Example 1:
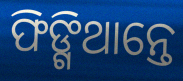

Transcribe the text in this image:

ଫିଙ୍ଗିଥାନ୍ତେ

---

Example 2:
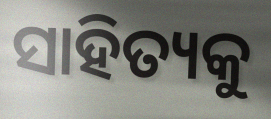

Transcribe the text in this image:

ସାହିତ୍ୟକୁ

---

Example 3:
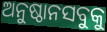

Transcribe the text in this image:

ଅନୁଷ୍ଠାନସବୁକୁ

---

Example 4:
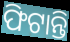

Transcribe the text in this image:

ଫିଟାନ୍ତି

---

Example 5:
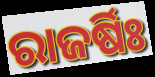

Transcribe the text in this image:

ରାଜର୍ଷିଃ